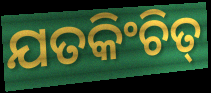
ଯତକିଂଚିତ୍